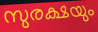
സുരക്ഷയും